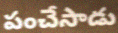
పంచేసాడు